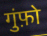
गुंफ़ो